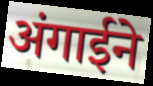
अंगाईने